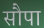
सौपा